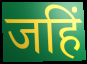
जहिं